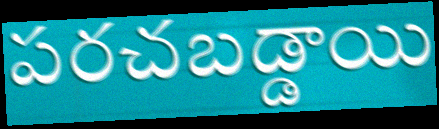
పరచబడ్డాయి